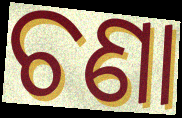
ଚଣା